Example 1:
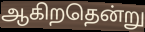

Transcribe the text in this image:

ஆகிறதென்று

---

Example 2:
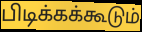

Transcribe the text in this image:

பிடிக்கக்கூடும்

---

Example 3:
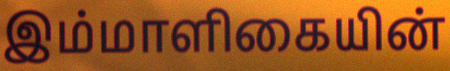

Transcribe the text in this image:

இம்மாளிகையின்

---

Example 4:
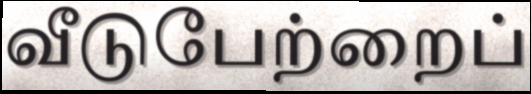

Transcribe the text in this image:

வீடுபேற்றைப்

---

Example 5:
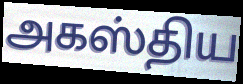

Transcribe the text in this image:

அகஸ்திய